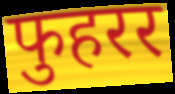
फुहरर